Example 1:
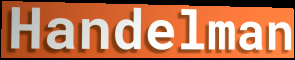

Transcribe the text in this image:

Handelman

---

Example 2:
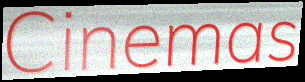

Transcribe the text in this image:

Cinemas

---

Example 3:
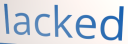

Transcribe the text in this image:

lacked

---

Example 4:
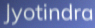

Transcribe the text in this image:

Jyotindra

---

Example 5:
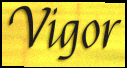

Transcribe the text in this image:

Vigor